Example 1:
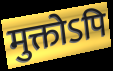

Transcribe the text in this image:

मुक्तोऽपि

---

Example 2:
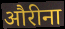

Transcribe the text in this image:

औरीना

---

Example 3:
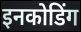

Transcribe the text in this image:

इनकोडिंग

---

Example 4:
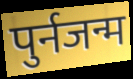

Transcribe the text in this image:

पुर्नजन्म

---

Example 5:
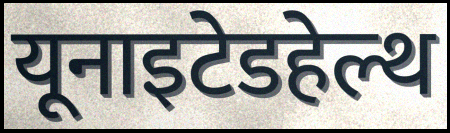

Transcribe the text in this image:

यूनाइटेडहेल्थ